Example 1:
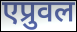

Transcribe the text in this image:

एप्रुवल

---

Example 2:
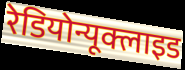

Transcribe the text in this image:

रेडियोन्यूक्लाइड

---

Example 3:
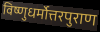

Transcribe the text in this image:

विष्णुधर्मोत्तरपुराण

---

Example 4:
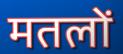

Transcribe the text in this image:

मतलों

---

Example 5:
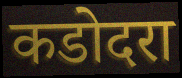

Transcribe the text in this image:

कडोदरा